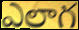
ఎలాగ